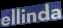
ellinda